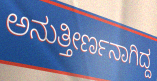
ಅನುತ್ತೀರ್ಣನಾಗಿದ್ದ